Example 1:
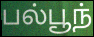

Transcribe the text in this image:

பல்பூந்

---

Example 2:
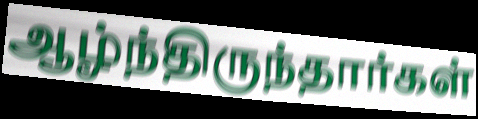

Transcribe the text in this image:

ஆழ்ந்திருந்தார்கள்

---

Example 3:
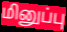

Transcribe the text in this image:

மினுப்பு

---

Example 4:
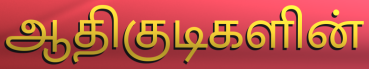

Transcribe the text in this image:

ஆதிகுடிகளின்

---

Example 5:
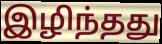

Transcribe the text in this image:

இழிந்தது